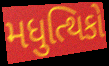
મધુત્થિકો